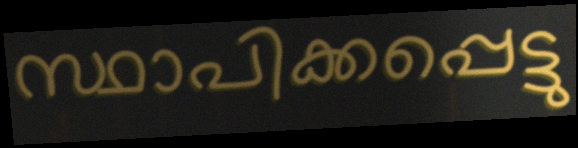
സ്ഥാപിക്കപ്പെട്ടു